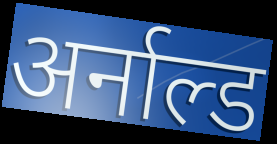
अर्नाल्ड